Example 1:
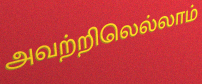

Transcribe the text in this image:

அவற்றிலெல்லாம்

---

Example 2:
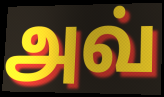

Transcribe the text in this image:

அவ்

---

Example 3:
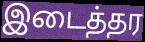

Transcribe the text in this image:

இடைத்தர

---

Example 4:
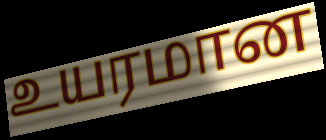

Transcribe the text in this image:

உயரமான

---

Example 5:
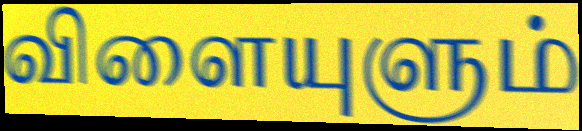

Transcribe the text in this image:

விளையுளும்